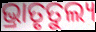
ଭ୍ରାତୃତୁଲ୍ୟ